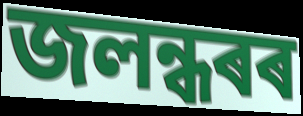
জলন্ধৰৰ